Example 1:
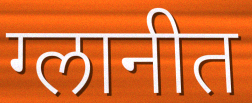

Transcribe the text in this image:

ग्लानीत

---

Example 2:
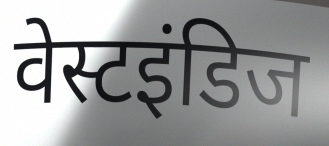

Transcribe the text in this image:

वेस्टइंडिज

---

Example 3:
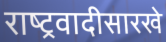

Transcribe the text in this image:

राष्ट्रवादीसारखे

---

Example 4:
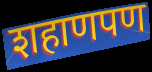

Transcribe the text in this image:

शहाणपण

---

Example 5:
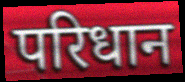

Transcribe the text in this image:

परिधान